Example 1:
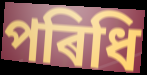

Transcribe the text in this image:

পৰিধি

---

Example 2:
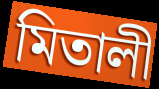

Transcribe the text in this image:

মিতালী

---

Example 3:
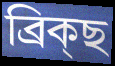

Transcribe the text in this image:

ব্ৰিক্ছ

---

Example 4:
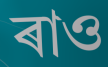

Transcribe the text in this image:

ৰাও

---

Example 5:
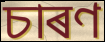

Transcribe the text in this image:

চাৰণ